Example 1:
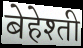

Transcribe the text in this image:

बेहेश्ती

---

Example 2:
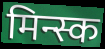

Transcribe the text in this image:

मिन्स्क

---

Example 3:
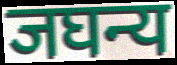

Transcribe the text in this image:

जघन्‍य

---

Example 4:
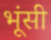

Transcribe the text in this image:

भूंसी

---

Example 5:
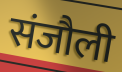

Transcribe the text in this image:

संजौली